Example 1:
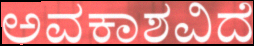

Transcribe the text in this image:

ಅವಕಾಶವಿದೆ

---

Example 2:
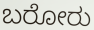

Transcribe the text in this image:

ಬರೋರು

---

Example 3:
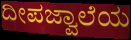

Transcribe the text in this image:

ದೀಪಜ್ವಾಲೆಯ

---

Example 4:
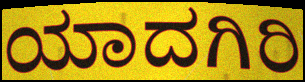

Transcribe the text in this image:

ಯಾದಗಿರಿ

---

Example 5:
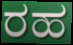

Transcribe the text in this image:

ರಹ